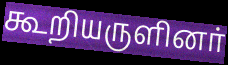
கூறியருளினர்